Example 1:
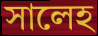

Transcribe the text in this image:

সালেহ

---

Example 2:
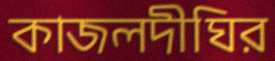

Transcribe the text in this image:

কাজলদীঘির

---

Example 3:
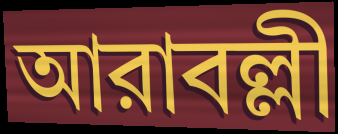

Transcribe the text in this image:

আরাবল্লী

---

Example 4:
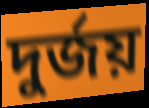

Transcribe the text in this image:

দুর্জয়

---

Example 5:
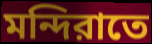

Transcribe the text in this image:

মন্দিরাতে